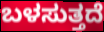
ಬಳಸುತ್ತದೆ